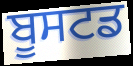
ਬੂਸਟਡ